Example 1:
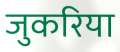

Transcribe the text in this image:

जुकरिया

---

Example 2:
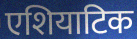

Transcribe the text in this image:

एशियाटिक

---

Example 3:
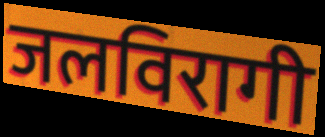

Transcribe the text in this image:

जलविरागी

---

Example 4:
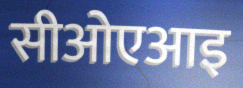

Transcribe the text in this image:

सीओएआइ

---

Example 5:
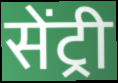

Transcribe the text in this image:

सेंट्री